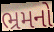
ભ્રમનો